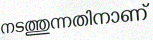
നടത്തുന്നതിനാണ്